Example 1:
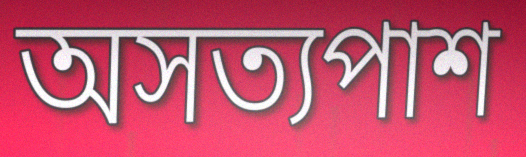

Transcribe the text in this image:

অসত্যপাশ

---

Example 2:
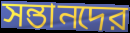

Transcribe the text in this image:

সন্তানদের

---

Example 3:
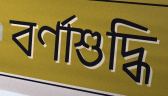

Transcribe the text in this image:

বর্ণাশুদ্ধি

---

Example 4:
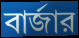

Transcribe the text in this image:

বার্জার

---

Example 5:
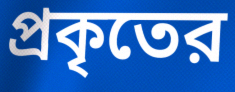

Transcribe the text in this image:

প্রকৃতের